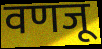
वणजू